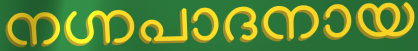
നഗ്നപാദനായ